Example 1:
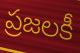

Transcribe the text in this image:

ప్రజలకీ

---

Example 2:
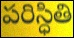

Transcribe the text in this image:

పరిస్ధితి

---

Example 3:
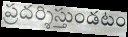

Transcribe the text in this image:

ప్రదర్శిస్తుండటం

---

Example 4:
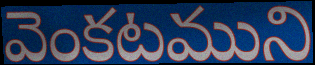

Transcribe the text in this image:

వెంకటముని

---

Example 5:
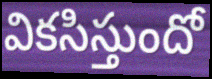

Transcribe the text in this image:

వికసిస్తుందో